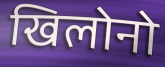
खिलोनो